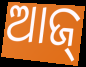
ଆଜ୍